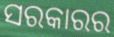
ସରକାରର